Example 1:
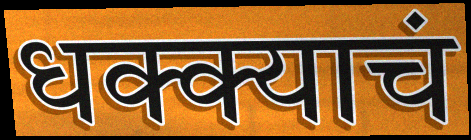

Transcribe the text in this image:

धक्क्याचं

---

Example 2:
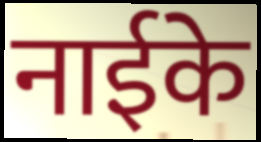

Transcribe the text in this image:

नाईके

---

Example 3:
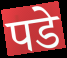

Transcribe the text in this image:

पडे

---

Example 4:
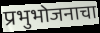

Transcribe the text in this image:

प्रभुभोजनाचा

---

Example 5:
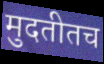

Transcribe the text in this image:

मुदतीतच